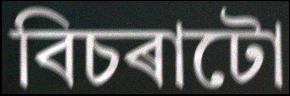
বিচৰাটো